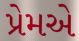
પ્રેમએ